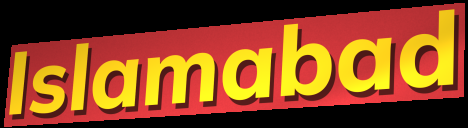
Islamabad